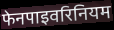
फेनपाइवरिनियम